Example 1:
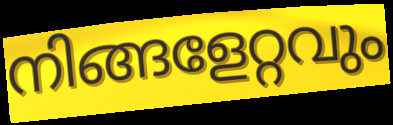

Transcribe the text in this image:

നിങ്ങളേറ്റവും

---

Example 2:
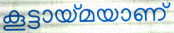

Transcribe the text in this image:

കൂട്ടായ്മയാണ്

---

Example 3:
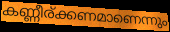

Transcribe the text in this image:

കണ്ണീര്ക്കണമാണെന്നും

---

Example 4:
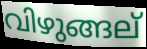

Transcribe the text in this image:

വിഴുങ്ങല്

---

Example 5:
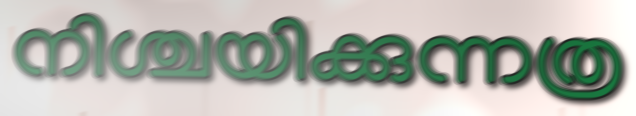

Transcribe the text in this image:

നിശ്ചയിക്കുന്നത്ര